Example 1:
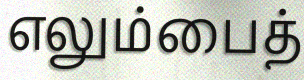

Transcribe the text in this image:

எலும்பைத்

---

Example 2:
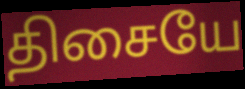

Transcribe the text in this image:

திசையே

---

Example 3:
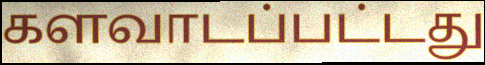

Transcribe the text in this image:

களவாடப்பட்டது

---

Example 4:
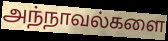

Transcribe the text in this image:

அந்நாவல்களை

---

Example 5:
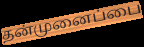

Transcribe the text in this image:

தன்முனைப்பை